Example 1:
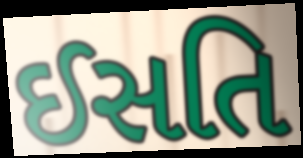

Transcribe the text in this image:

ઈસતિ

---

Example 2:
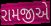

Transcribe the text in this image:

રામજીએ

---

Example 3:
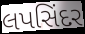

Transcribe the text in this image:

લપસિંદર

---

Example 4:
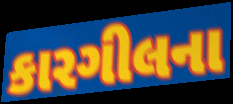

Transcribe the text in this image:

કારગીલના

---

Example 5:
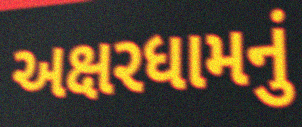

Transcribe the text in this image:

અક્ષરધામનું